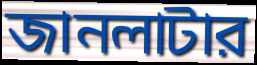
জানলাটার